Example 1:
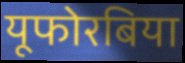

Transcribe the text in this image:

यूफोरबिया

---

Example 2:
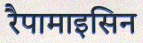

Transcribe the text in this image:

रैपामाइसिन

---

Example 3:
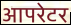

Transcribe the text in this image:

आपरेटर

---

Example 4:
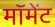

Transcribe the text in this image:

मॉमेंट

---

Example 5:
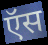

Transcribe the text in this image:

ऍस